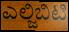
ಎಲ್ಜಿಬಿಟಿ